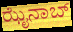
ಝೈನಾಬ್